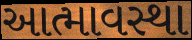
આત્માવસ્થા